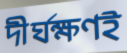
দীর্ঘক্ষণই